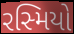
રસ્મિયો